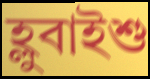
হ্লুবাইশু